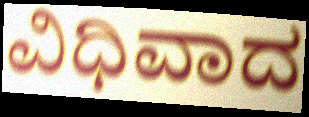
ವಿಧಿವಾದ